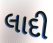
લાદી